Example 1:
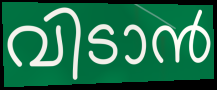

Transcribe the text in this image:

വിടാൻ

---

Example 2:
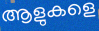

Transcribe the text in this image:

ആളുകളെ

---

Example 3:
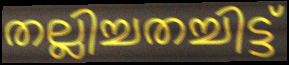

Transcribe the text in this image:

തല്ലിച്ചതച്ചിട്ട്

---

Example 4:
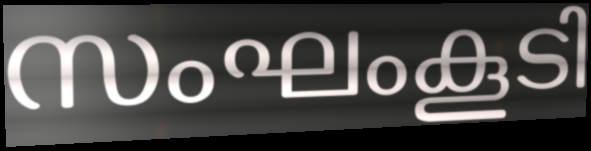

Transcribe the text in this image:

സംഘംകൂടി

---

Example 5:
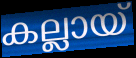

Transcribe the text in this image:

കല്ലായ്